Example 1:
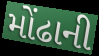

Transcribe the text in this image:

મોંઢાની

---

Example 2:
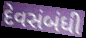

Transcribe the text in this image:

દેવસંબંધી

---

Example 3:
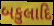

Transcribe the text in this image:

બકુલાદિ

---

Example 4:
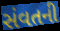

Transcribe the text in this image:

સંવતની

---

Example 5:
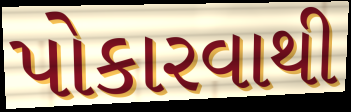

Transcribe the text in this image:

પોકારવાથી